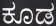
ಕೂಡ